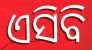
ଏସିବି